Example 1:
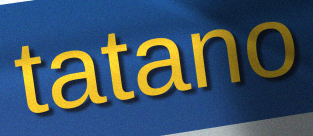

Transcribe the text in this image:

tatano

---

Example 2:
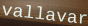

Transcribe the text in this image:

vallavar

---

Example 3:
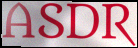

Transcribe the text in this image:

ASDR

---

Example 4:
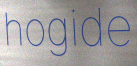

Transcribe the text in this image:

hogide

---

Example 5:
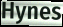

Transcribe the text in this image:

Hynes